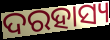
ଦରହାସ୍ୟ